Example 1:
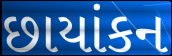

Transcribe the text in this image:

છાયાંકન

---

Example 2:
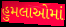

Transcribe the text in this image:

હુમલાઓમાં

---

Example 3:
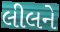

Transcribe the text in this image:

લીલને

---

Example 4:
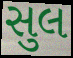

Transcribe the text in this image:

સુલ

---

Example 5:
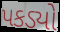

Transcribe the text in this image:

પકડ્યો